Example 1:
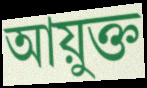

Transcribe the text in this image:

আয়ুক্ত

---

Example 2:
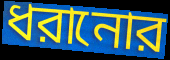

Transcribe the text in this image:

ধরানোর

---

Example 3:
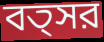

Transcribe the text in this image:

বত্সর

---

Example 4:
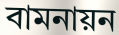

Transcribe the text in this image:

বামনায়ন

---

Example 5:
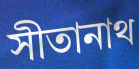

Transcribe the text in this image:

সীতানাথ